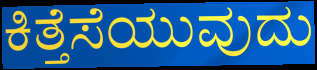
ಕಿತ್ತೆಸೆಯುವುದು